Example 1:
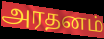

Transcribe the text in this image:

அரதனம்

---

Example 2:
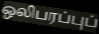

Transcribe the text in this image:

ஒலிபரப்புப்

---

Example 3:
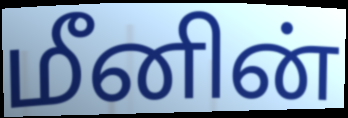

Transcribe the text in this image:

மீனின்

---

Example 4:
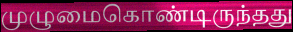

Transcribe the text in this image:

முழுமைகொண்டிருந்தது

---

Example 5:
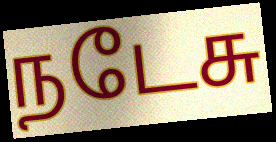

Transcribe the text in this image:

நடேசு